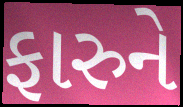
ફારુને